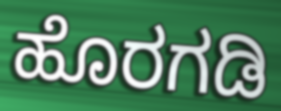
ಹೊರಗಡಿ